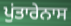
ਪੁਂਤਾਰੇਨਾਸ